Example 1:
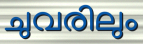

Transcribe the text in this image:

ചുവരിലും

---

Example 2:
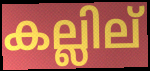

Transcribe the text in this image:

കല്ലില്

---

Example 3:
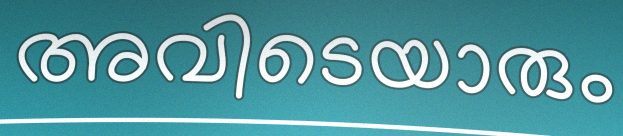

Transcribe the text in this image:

അവിടെയാരും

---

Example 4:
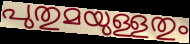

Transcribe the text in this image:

പുതുമയുള്ളതും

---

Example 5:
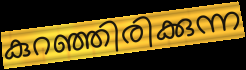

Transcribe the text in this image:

കുറഞ്ഞിരിക്കുന്ന